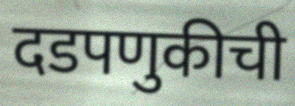
दडपणुकीची